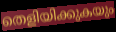
തെളിയിക്കുകയും